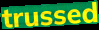
trussed